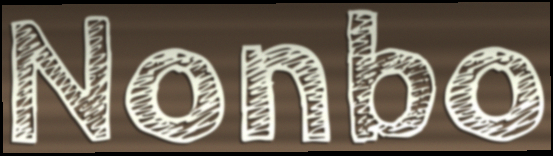
Nonbo